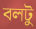
বলটু